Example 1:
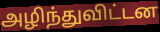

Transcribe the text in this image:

அழிந்துவிட்டன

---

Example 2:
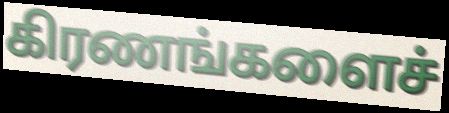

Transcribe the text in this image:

கிரணங்களைச்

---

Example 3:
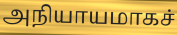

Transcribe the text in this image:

அநியாயமாகச்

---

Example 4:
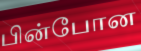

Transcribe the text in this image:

பின்போன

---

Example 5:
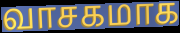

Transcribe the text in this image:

வாசகமாக